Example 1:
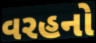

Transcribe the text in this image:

વરહનો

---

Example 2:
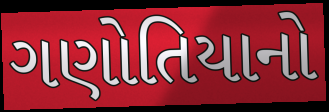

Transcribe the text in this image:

ગણોતિયાનો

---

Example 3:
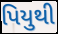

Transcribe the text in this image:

પિયુથી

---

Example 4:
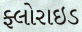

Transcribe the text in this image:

ફ્લોરાઇડ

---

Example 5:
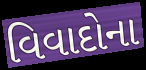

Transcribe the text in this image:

વિવાદોના